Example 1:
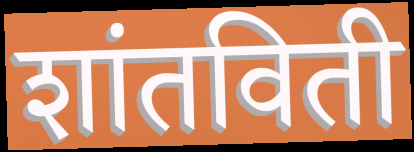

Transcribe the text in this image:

शांतविती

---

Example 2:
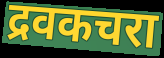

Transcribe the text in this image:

द्रवकचरा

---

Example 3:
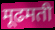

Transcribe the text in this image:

मूढमती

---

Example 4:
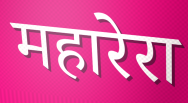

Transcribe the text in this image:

महारेरा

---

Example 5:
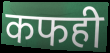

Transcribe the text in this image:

कफही